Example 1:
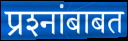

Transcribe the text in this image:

प्रश्‍नांबाबत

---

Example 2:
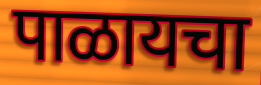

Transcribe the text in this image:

पाळायचा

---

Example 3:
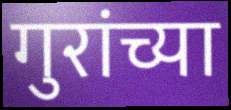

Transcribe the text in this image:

गुरांच्या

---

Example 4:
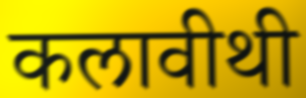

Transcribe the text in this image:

कलावीथी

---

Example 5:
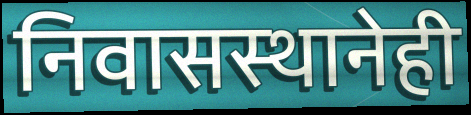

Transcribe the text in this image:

निवासस्थानेही